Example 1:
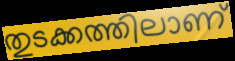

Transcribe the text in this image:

തുടക്കത്തിലാണ്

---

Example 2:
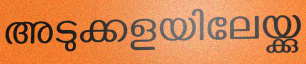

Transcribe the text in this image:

അടുക്കളയിലേയ്ക്കു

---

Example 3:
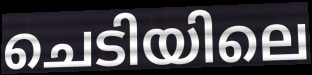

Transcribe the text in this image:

ചെടിയിലെ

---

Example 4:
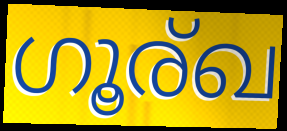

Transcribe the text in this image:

ഗൂര്ഖ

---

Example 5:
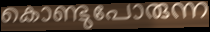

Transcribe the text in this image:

കൊണ്ടുപോരുന്ന